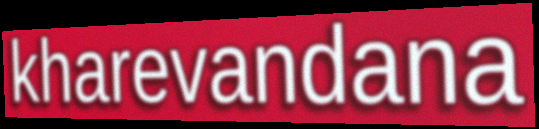
kharevandana